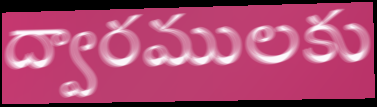
ద్వారములకు